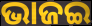
ଭାଜଇ